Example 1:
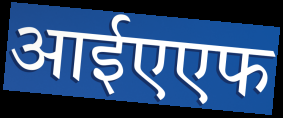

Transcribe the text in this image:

आईएएफ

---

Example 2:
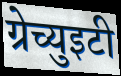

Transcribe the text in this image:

ग्रेच्युइटी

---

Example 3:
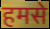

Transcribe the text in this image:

हमसे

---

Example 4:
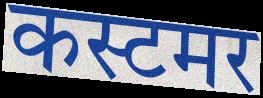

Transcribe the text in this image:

कस्टमर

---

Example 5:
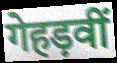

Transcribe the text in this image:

गेहड़वीं